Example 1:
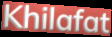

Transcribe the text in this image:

Khilafat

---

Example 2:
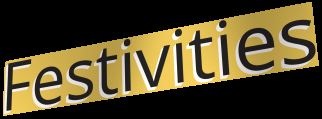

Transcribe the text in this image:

Festivities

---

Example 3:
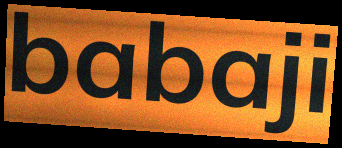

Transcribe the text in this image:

babaji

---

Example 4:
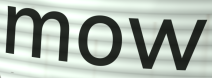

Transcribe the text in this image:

mow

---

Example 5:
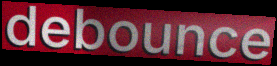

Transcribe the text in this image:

debounce